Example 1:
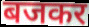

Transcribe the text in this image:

बजकर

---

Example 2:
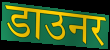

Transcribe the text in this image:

डाउनर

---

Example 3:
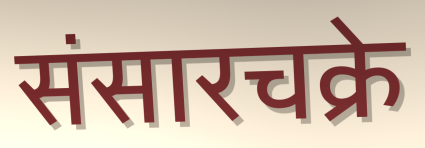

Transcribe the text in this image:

संसारचक्रे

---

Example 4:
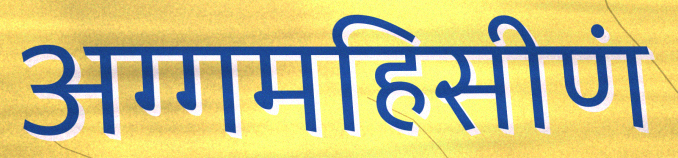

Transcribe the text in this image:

अग्गमहिसीणं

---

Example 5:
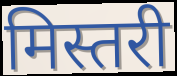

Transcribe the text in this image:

मिस्तरी